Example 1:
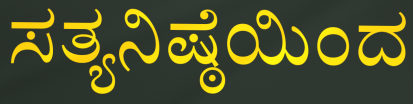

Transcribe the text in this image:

ಸತ್ಯನಿಷ್ಠೆಯಿಂದ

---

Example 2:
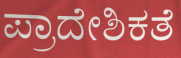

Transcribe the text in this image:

ಪ್ರಾದೇಶಿಕತೆ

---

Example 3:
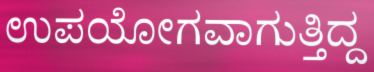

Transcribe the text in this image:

ಉಪಯೋಗವಾಗುತ್ತಿದ್ದ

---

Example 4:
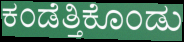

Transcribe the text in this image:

ಕಂಡೆತ್ತಿಕೊಂಡು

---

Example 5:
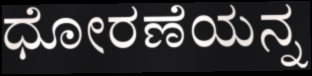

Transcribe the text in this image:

ಧೋರಣೆಯನ್ನ